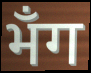
भँग